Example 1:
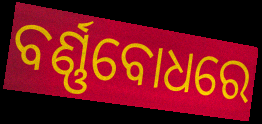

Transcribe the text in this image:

ବର୍ଣ୍ଣବୋଧରେ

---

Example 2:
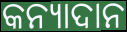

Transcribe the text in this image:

କନ୍ୟାଦାନ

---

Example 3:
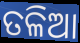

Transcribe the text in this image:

ତଳିଆ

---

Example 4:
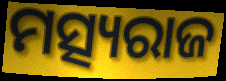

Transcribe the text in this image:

ମତ୍ସ୍ୟରାଜ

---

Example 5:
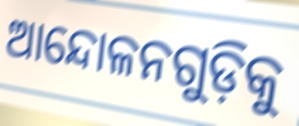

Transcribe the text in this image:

ଆନ୍ଦୋଳନଗୁଡ଼ିକୁ